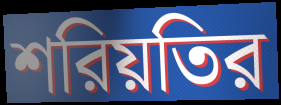
শরিয়তির